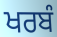
ਖਰਬੰ